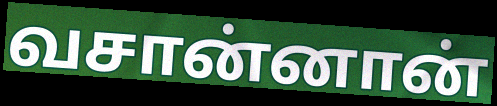
வசான்னான்